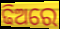
ଢିଅରେ